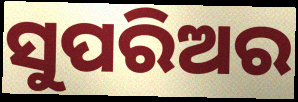
ସୁପରିଅର